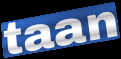
taan